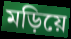
মড়িয়ে